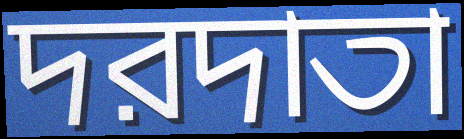
দরদাতা